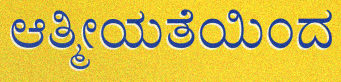
ಆತ್ಮೀಯತೆಯಿಂದ